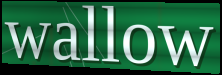
wallow